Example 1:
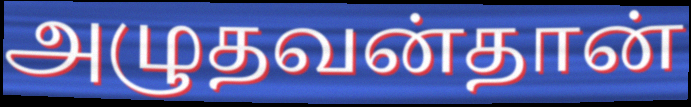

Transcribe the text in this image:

அழுதவன்தான்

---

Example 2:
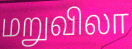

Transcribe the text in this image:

மறுவிலா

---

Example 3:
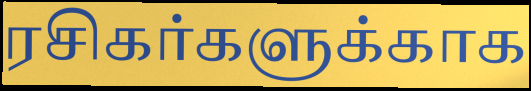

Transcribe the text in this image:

ரசிகர்களுக்காக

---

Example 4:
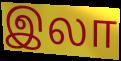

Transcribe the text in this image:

இலா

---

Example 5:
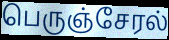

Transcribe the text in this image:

பெருஞ்சேரல்